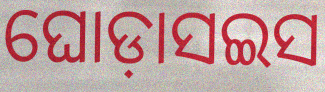
ଘୋଡ଼ାସଇସ